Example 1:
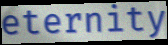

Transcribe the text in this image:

eternity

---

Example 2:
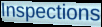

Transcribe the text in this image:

Inspections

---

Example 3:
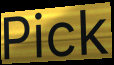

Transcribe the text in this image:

Pick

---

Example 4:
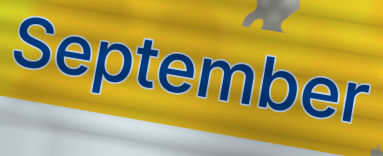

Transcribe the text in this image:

September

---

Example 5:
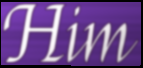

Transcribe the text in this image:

Him